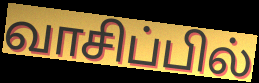
வாசிப்பில்